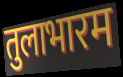
तुलाभारम